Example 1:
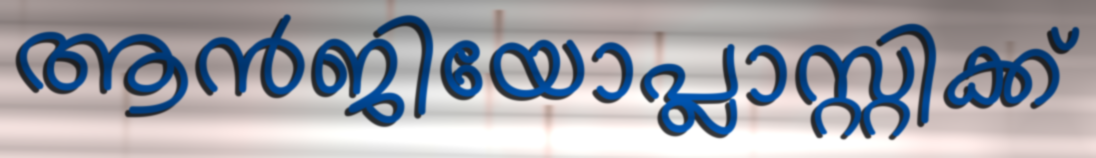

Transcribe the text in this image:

ആൻജിയോപ്ലാസ്റ്റിക്ക്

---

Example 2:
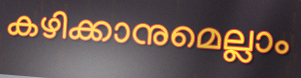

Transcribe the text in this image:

കഴിക്കാനുമെല്ലാം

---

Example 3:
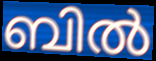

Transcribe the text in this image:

ബിൽ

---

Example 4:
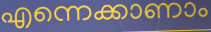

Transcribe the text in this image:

എന്നെക്കാണാം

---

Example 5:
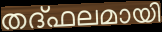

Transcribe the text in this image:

തദ്ഫലമായി